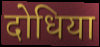
दोधिया